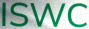
ISWC